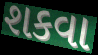
શકવા